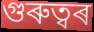
গুৰুত্বৰ